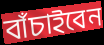
বাঁচাইবেন